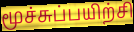
மூச்சுப்பயிற்சி